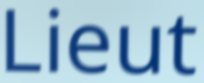
Lieut